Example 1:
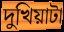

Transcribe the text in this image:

দুখিয়াটা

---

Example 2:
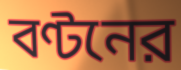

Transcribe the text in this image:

বণ্টনের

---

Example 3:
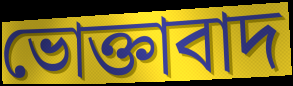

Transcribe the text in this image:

ভোক্তাবাদ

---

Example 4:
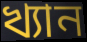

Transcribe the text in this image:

খ্যান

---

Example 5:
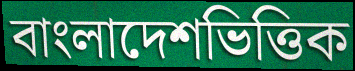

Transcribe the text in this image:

বাংলাদেশভিত্তিক